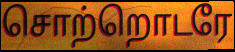
சொற்றொடரே